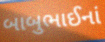
બાબુભાઈનાં